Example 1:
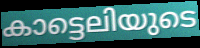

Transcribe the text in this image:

കാട്ടെലിയുടെ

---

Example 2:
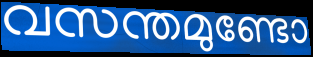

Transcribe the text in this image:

വസന്തമുണ്ടോ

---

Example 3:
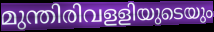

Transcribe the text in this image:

മുന്തിരിവളളിയുടെയും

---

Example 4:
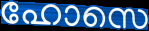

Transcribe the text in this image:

ഹോസെ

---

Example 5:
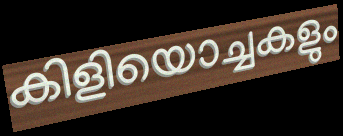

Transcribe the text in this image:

കിളിയൊച്ചകളും